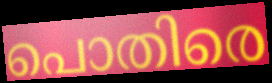
പൊതിരെ